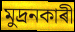
মুদ্ৰনকাৰী